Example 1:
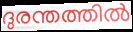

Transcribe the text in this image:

ദുരന്തത്തിൽ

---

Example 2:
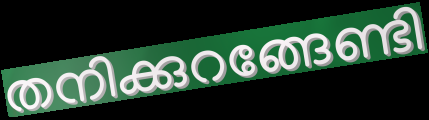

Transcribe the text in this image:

തനിക്കുറങ്ങേണ്ടി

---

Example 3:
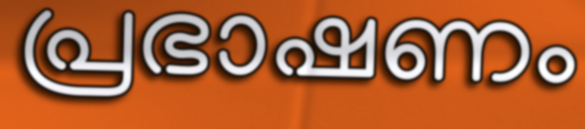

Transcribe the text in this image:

പ്രഭാഷണം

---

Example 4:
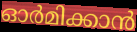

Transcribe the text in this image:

ഓർമിക്കാൻ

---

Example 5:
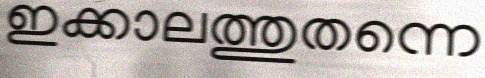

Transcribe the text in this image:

ഇക്കാലത്തുതന്നെ